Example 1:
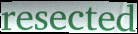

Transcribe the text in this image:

resected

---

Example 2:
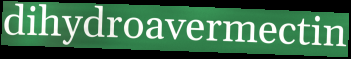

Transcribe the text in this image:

dihydroavermectin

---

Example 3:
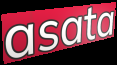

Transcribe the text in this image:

asata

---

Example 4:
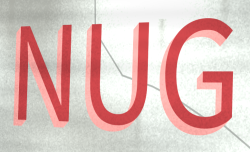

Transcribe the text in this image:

NUG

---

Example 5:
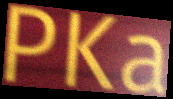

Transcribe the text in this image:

PKa